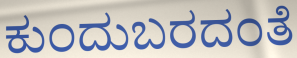
ಕುಂದುಬರದಂತೆ